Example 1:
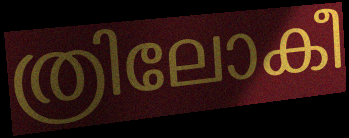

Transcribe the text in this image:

ത്രിലോകീ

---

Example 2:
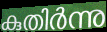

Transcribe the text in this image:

കുതിർന്നു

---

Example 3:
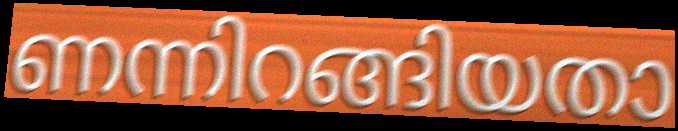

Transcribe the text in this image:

ണന്നിറങ്ങിയതാ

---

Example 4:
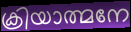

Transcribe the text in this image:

ക്രിയാത്മനേ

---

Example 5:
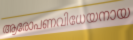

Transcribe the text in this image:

ആരോപണവിധേയനായ